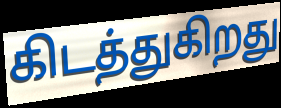
கிடத்துகிறது